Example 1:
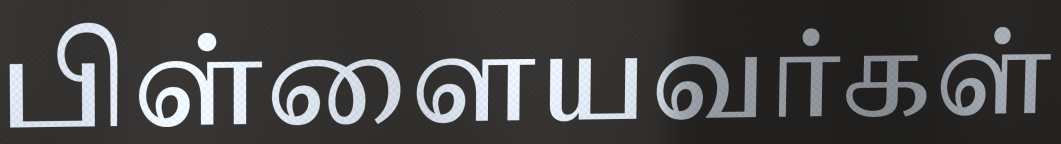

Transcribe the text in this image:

பிள்ளையவர்கள்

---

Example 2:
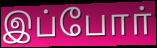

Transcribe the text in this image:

இப்போர்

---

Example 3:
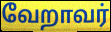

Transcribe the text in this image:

வேறாவர்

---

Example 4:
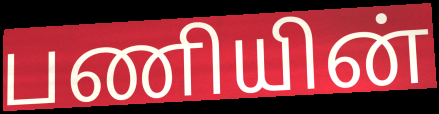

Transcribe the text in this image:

பணியின்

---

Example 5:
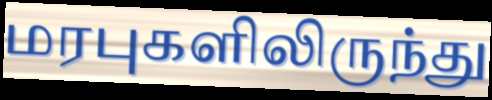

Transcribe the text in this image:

மரபுகளிலிருந்து